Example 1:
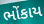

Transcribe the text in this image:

ભોંકાય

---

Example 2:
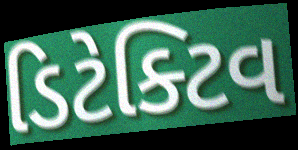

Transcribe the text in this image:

ડિટેક્ટિવ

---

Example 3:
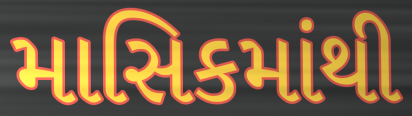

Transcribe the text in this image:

માસિકમાંથી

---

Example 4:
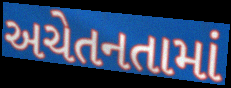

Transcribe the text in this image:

અચેતનતામાં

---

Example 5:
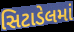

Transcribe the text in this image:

સિટાડેલમાં